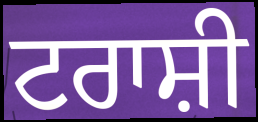
ਟਰਾਸ਼ੀ